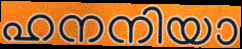
ഹനനിയാ